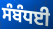
ਸੰਬੰਧਈ